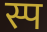
स्प